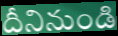
దీనినుండి